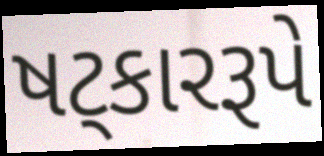
ષટ્કારરૂપે